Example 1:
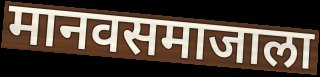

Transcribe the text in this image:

मानवसमाजाला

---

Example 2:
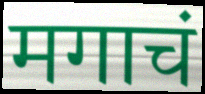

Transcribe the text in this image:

मगाचं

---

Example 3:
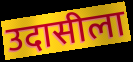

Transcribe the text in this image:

उदासीला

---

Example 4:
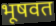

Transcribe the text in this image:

भूषवत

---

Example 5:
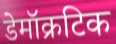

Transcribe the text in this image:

डेमॉक्रटिक